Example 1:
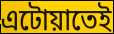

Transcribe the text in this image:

এটোয়াতেই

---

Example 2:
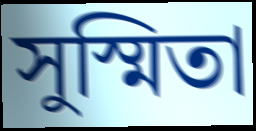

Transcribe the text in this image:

সুস্মিতা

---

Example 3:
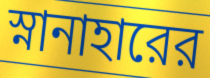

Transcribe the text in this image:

স্নানাহারের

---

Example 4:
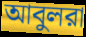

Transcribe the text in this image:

আবুলরা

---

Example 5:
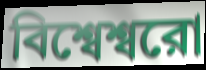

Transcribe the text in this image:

বিশ্বেশ্বরো